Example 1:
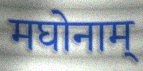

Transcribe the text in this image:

मघोनाम्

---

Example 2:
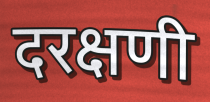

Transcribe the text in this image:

दरक्षणी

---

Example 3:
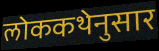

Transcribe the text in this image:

लोककथेनुसार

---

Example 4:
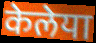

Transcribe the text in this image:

केलेया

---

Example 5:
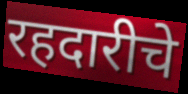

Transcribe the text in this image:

रहदारीचे